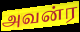
அவன்ர